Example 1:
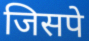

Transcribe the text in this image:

जिसपे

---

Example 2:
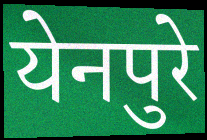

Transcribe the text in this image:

येनपुरे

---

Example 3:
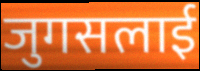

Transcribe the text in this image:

जुगसलाई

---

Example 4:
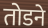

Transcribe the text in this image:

तोडने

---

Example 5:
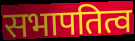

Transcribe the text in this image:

सभापतित्व